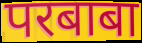
परबाबा